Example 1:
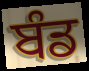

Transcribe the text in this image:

ਬੰਡ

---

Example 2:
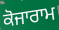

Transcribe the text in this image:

ਕੋਜਾਰਾਮ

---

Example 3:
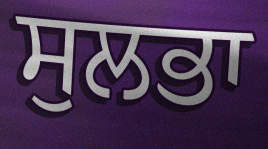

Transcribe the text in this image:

ਸੁਲਭਾ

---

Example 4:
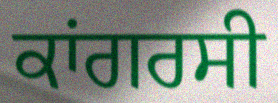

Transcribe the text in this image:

ਕਾਂਗਰਸੀ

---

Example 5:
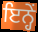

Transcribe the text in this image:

ਇਨ੍ਹੇਂ